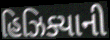
હિઝિક્યાની